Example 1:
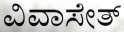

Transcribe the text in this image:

ವಿವಾಸೇತ್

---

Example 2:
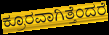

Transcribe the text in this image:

ಕ್ರೂರವಾಗಿತ್ತೆಂದರೆ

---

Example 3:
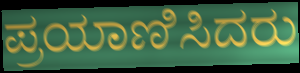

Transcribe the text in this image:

ಪ್ರಯಾಣಿಸಿದರು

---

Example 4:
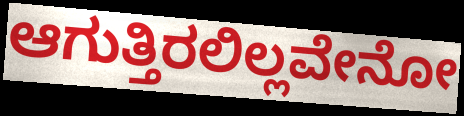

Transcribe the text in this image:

ಆಗುತ್ತಿರಲಿಲ್ಲವೇನೋ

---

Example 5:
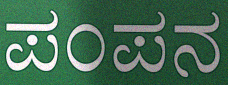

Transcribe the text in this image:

ಪಂಪನ